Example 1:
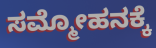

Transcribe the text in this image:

ಸಮ್ಮೋಹನಕ್ಕೆ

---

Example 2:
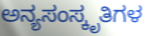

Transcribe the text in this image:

ಅನ್ಯಸಂಸ್ಕೃತಿಗಳ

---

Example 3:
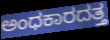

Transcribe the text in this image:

ಅಂಧಕಾರದತ್ತ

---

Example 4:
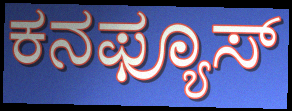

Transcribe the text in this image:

ಕನಫ್ಯೂಸ್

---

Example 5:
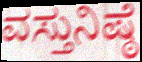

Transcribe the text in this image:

ವಸ್ತುನಿಷ್ಠೆ